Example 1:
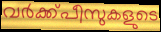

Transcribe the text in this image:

വർക്ക്പീസുകളുടെ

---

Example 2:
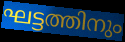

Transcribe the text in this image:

ഘട്ടത്തിനും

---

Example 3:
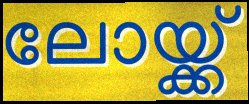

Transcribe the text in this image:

ലോയ്ക്ക്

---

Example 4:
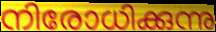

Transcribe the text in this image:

നിരോധിക്കുന്നു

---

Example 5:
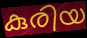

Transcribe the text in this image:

കുരിയ